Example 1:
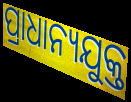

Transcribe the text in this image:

ପ୍ରାଧାନ୍ୟଯୁକ୍ତ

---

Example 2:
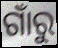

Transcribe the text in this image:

ଗାଁରୁ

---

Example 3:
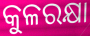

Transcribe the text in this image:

କୁଳରକ୍ଷା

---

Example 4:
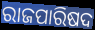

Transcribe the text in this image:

ରାଜପାରିଷଦ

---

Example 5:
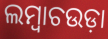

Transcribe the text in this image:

ଲମ୍ୱାଚଉଡ଼ା